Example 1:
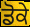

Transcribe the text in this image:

ਡੋਕੇ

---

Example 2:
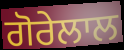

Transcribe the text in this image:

ਗੋਰੇਲਾਲ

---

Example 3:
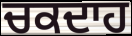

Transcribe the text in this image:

ਚਕਦਾਹ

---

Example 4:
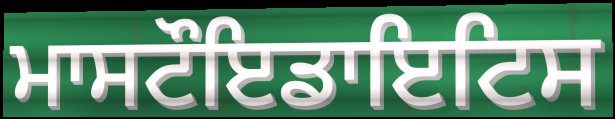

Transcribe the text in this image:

ਮਾਸਟੌਇਡਾਇਟਿਸ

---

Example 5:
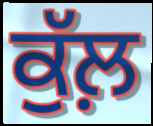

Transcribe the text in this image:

ਕੁੱਲ਼